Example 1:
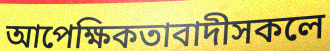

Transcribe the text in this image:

আপেক্ষিকতাবাদীসকলে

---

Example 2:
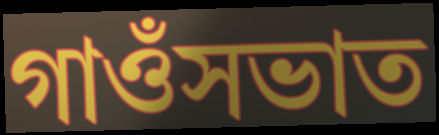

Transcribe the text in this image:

গাওঁসভাত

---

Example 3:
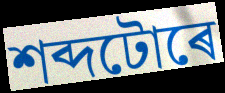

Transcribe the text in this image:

শব্দটোৰে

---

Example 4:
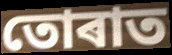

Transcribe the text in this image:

তোৰাত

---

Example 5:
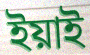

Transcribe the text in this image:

ইয়াই